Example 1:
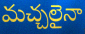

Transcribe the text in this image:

మచ్చలైనా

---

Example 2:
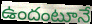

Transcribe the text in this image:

ఉందంటూనే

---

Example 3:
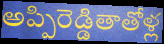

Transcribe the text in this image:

అప్పిరెడ్డితాతోళ్ల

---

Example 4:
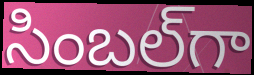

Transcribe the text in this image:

సింబల్‌గా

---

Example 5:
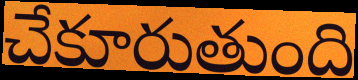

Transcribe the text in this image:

చేకూరుతుంది